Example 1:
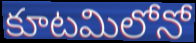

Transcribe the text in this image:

కూటమిలోనో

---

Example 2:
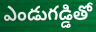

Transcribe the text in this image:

ఎండుగడ్డితో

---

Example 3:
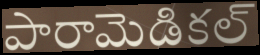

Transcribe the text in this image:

పారామెడికల్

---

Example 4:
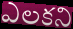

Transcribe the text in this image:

ఎలకని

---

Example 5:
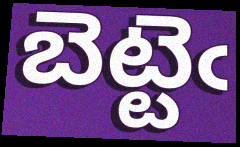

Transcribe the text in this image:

బెట్టెఁ